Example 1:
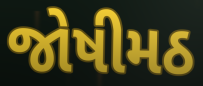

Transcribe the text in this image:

જોષીમઠ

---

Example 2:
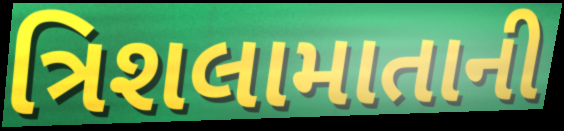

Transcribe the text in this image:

ત્રિશલામાતાની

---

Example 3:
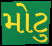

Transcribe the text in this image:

મોટુ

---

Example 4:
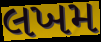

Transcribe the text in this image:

લખમ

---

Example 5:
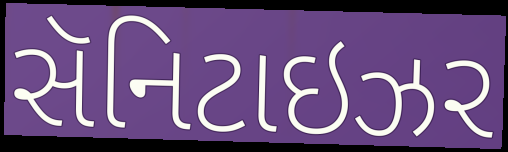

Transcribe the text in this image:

સૅનિટાઇઝર